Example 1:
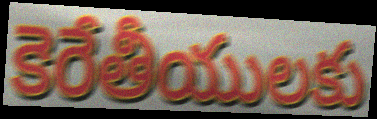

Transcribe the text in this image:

కెరేతీయులకు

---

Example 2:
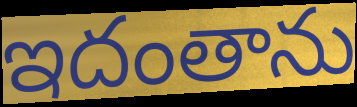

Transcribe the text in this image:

ఇదంతాను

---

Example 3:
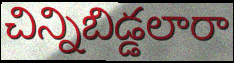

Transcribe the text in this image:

చిన్నిబిడ్డలారా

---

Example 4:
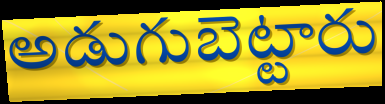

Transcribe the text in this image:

అడుగుబెట్టారు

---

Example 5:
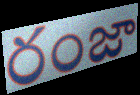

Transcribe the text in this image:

రంజా